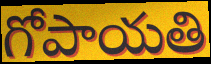
గోపాయతి